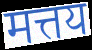
मत्तय